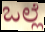
ಒಲ್ಲೆ